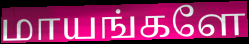
மாயங்களே